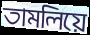
তামলিয়ে